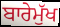
ਬਾਰੇਮੁੱਖ